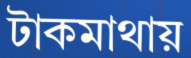
টাকমাথায়